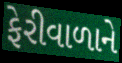
ફેરીવાળાને